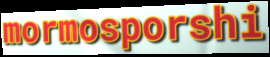
mormosporshi